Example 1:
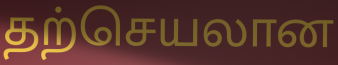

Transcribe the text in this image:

தற்செயலான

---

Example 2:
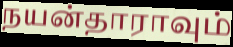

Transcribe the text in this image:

நயன்தாராவும்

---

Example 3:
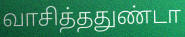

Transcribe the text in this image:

வாசித்ததுண்டா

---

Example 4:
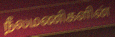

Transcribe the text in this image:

நீலமணிகளின்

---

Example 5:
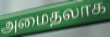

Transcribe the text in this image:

அமைதலாக